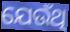
ଯେଉଁଥି